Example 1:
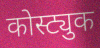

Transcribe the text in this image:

कोस्ट्युक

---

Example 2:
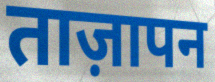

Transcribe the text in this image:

ताज़ापन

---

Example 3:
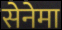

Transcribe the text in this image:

सेनेमा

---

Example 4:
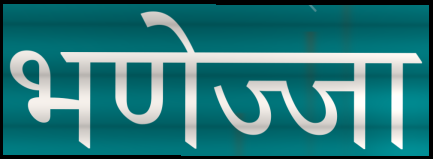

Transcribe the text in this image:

भणेज्जा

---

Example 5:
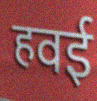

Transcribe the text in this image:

हवई